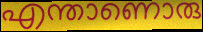
എന്താണൊരു